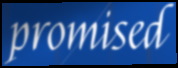
promised